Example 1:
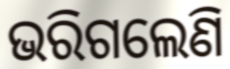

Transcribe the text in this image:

ଭରିଗଲେଣି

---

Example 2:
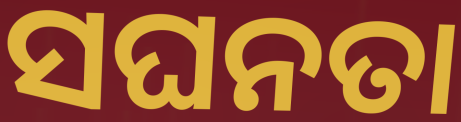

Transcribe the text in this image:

ସଘନତା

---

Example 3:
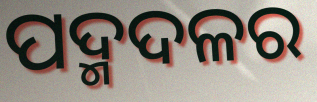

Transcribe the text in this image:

ପଦ୍ମଦଳର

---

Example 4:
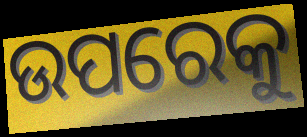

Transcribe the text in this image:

ଉପରେକୁ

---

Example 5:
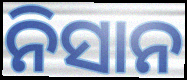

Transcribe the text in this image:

ନିସାନ